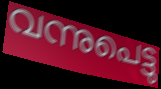
വന്നുപെട്ടു